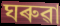
ঘৰুৱা